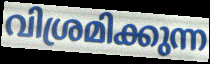
വിശ്രമിക്കുന്ന